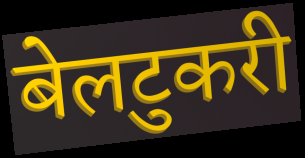
बेलटुकरी